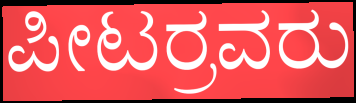
ಪೀಟರ್‍ರವರು